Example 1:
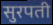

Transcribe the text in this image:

सुरपती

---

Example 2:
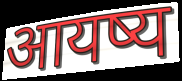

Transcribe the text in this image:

आयष्य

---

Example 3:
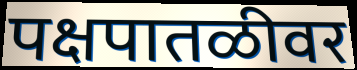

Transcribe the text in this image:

पक्षपातळीवर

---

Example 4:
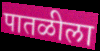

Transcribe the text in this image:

पातळीला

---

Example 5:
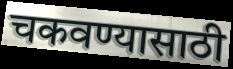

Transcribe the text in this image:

चकवण्यासाठी